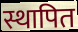
स्थापित